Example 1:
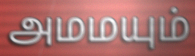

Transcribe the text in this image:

அமமயும்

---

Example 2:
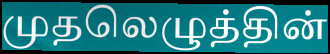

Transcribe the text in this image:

முதலெழுத்தின்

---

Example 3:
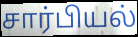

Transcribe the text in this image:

சார்பியல்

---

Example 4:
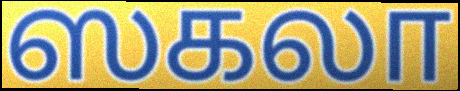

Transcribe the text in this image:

ஸகலா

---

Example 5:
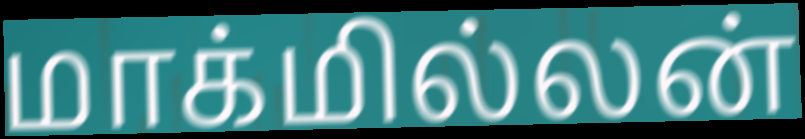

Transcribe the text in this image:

மாக்மில்லன்